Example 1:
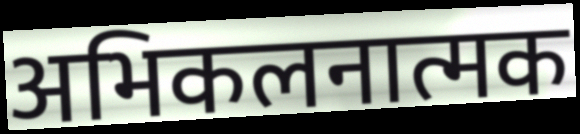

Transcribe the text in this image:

अभिकलनात्मक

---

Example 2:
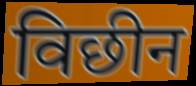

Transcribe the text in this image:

विछीन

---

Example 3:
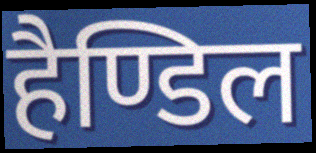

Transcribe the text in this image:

हैण्डिल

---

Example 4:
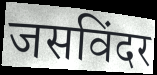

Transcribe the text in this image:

जसविंदर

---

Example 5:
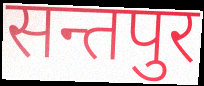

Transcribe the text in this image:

सन्तपुर